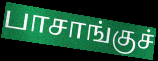
பாசாங்குச்